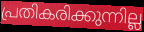
പ്രതികരിക്കുന്നില്ല